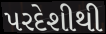
પરદેશીથી